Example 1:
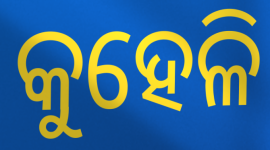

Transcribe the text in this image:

କୁହେଳି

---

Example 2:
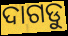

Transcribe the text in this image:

ଦାଗଡୁ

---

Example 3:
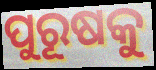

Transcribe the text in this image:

ପୁରୂଷକୁ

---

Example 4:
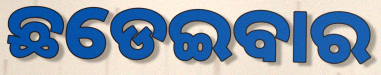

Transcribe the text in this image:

ଛଡେଇବାର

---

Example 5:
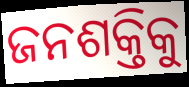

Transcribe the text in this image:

ଜନଶକ୍ତିକୁ